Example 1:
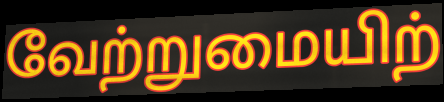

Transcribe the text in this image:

வேற்றுமையிற்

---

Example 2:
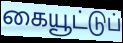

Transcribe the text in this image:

கையூட்டுப்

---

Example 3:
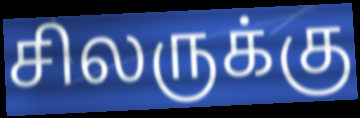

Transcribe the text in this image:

சிலருக்கு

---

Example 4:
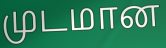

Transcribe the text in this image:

முடமான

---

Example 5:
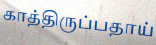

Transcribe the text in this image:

காத்திருப்பதாய்